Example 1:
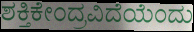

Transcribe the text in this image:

ಶಕ್ತಿಕೇಂದ್ರವಿದೆಯೆಂದು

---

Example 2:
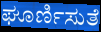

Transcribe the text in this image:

ಘೂರ್ಣಿಸುತೆ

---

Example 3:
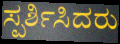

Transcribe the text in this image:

ಸ್ಪರ್ಶಿಸಿದರು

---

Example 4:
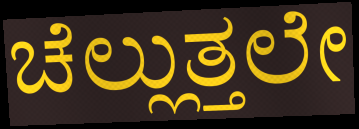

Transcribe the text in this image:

ಚೆಲ್ಲುತ್ತಲೇ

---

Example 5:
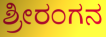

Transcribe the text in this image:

ಶ್ರೀರಂಗನ